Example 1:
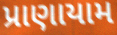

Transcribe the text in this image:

પ્રાણાયામ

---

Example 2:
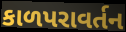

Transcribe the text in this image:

કાળપરાવર્તન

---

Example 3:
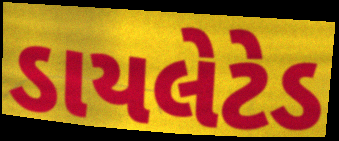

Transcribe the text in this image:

ડાયલેટેડ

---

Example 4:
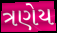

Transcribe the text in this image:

ત્રણેય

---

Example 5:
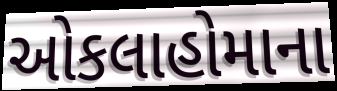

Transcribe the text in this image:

ઓકલાહોમાના